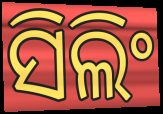
ସିଲିଂ